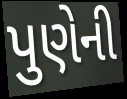
પુણેની